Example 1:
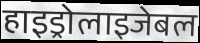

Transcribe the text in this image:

हाइड्रोलाइजेबल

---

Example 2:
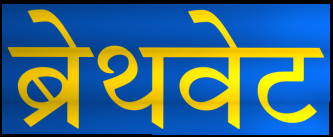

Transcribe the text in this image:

ब्रेथवेट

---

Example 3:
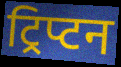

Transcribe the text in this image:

ट्रिप्टन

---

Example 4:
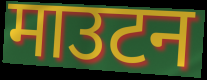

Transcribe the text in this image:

माउटन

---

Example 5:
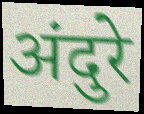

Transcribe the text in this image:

अंदुरे